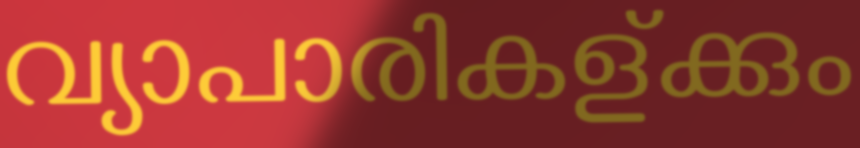
വ്യാപാരികള്ക്കും